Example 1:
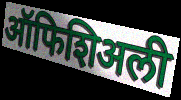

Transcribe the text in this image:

ऑफिशिअली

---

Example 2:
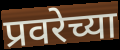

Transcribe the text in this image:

प्रवरेच्या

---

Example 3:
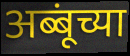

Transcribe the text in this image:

अब्बूंच्या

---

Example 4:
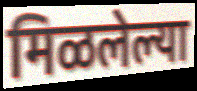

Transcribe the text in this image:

मिळलेल्या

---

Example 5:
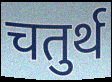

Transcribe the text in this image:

चतुर्थ